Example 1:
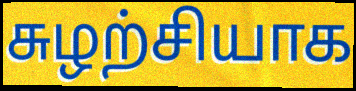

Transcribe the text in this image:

சுழற்சியாக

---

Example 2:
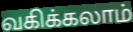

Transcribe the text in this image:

வகிக்கலாம்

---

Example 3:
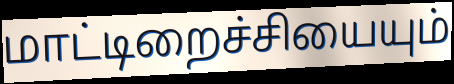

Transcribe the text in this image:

மாட்டிறைச்சியையும்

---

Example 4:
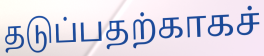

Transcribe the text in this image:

தடுப்பதற்காகச்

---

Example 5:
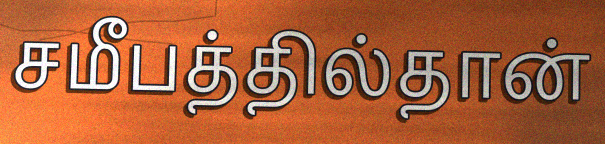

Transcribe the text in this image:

சமீபத்தில்தான்